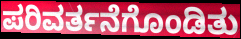
ಪರಿವರ್ತನೆಗೊಂಡಿತು